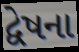
દ્વેષના